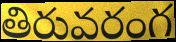
తిరువరంగ